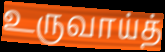
உருவாய்த்